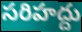
సరిహద్దు